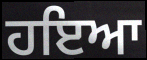
ਹਇਆ